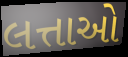
લત્તાઓ